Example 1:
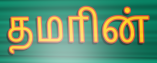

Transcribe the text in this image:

தமரின்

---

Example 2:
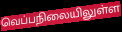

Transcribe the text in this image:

வெப்பநிலையிலுள்ள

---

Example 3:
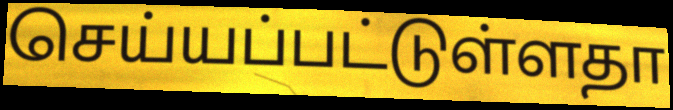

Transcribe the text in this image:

செய்யப்பட்டுள்ளதா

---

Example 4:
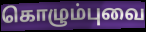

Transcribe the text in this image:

கொழும்புவை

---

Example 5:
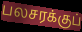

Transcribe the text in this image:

பலசரக்குப்